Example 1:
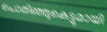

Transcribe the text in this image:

പൊതിഞ്ഞുകെട്ടുമായി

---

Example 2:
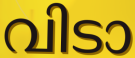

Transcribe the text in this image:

വിടാ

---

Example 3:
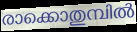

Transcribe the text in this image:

രാക്കൊതുമ്പിൽ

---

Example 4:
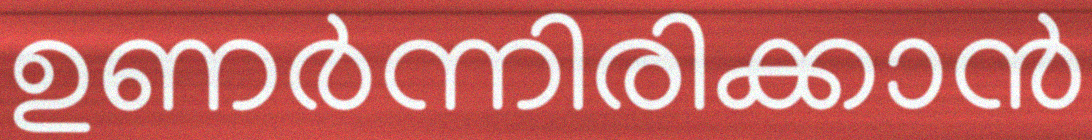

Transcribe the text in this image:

ഉണർന്നിരിക്കാൻ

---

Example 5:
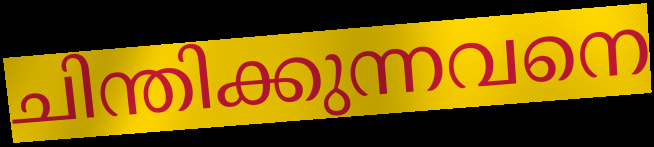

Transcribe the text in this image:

ചിന്തിക്കുന്നവനെ